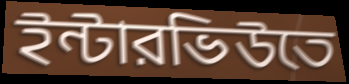
ইন্টারভিউতে